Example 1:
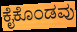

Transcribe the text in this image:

ಕೈಕೊಂಡವು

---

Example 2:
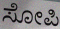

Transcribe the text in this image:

ಸೋಪಿ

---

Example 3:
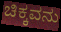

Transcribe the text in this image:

ಚಿಕ್ಕವನು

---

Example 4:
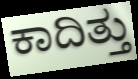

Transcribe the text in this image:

ಕಾದಿತ್ತು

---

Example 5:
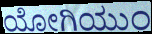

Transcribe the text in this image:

ಯೋಗಿಯುಂ